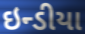
ઇન્ડીયા